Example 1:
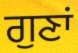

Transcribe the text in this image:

ਗੁਣਾਂ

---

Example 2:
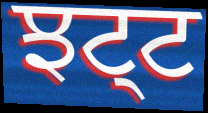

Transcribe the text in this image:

ਝਟ੍ਟ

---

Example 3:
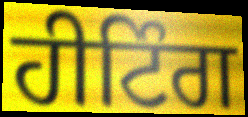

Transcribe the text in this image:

ਹੀਟਿੰਗ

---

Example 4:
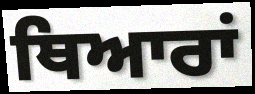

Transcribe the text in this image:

ਥਿਆਰਾਂ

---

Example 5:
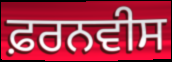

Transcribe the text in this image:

ਫ਼ਰਨਵੀਸ